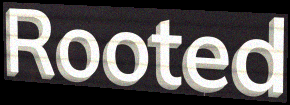
Rooted